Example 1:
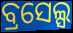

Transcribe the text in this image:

ବ୍ରସେଲ୍ସ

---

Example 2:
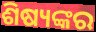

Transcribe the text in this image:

ଶିଷ୍ୟଙ୍କର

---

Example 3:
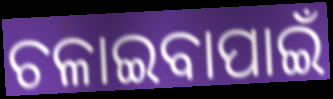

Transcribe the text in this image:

ଚଳାଇବାପାଇଁ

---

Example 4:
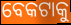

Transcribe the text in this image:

ବେକଟାକୁ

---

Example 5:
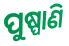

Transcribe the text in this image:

ପୁଷ୍ପାଣି